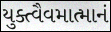
યુક્ત્વૈવમાત્માનં